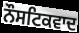
ਨੌਸਟਿਕਵਾਦ